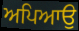
ਅਪਿਆਉ